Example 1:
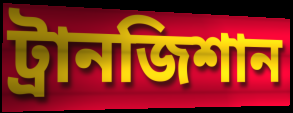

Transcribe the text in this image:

ট্রানজিশান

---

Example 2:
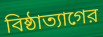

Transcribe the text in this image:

বিষ্ঠাত্যাগের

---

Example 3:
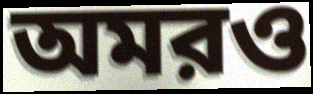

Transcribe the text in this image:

অমরও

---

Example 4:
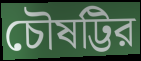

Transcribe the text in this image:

চৌষট্টির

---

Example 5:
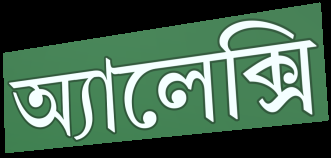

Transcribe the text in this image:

অ্যালেক্সি